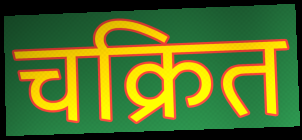
चक्रित